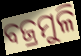
ବଜ୍ରମୁଳି